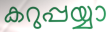
കറുപ്പയ്യാ